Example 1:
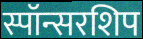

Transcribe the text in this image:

स्पॉन्सरशिप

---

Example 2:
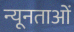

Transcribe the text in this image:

न्यूनताओं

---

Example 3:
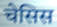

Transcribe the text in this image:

चेसिस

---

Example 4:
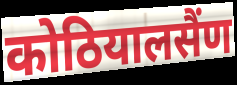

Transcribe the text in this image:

कोठियालसैंण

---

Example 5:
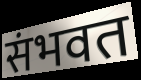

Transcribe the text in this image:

संभवत